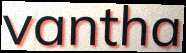
vantha